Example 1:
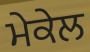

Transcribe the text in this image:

ਮੇਕੇਲ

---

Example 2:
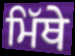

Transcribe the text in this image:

ਮਿੱਥੇ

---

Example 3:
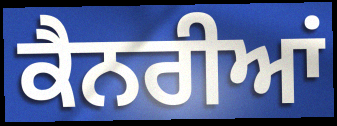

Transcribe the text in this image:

ਕੈਨਰੀਆਂ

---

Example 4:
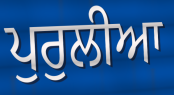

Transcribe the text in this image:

ਪੁਰੁਲੀਆ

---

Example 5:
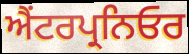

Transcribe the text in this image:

ਐਂਟਰਪ੍ਰਨਿਓਰ